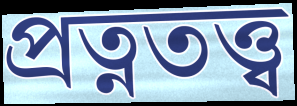
প্রত্নতত্ত্ব